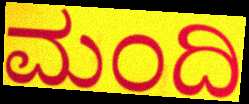
ಮಂದಿ